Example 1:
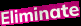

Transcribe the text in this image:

Eliminate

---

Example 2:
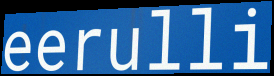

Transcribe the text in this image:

eerulli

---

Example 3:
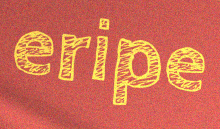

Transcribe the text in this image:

eripe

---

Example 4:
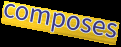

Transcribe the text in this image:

composes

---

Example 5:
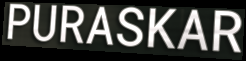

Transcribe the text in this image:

PURASKAR